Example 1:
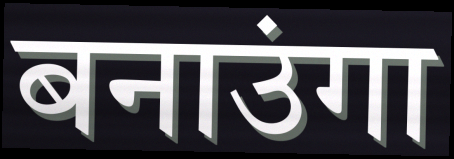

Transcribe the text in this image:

बनाउंगा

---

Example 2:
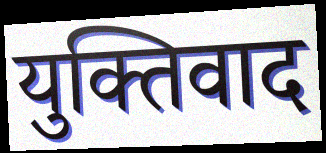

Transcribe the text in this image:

युक्तिवाद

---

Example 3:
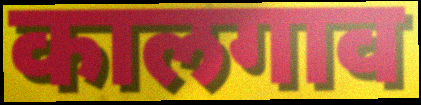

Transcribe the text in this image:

कालगाव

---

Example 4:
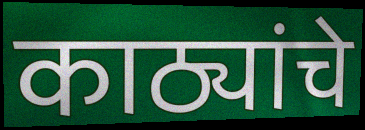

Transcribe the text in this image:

काठ्यांचे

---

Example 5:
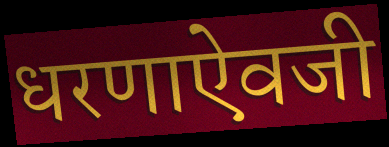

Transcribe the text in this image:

धरणाऐवजी